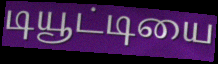
டியூட்டியை